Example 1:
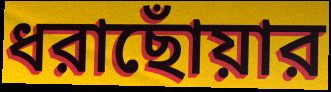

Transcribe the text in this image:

ধরাছোঁয়ার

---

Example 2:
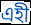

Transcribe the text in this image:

এহী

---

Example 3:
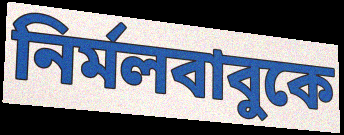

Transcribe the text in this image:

নির্মলবাবুকে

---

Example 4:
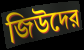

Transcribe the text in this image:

জিউদের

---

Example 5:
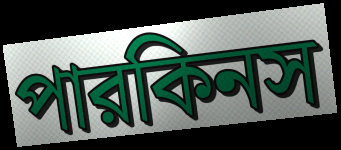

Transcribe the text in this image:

পারকিনস